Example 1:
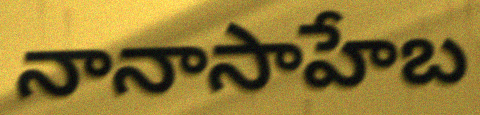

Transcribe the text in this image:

నానాసాహేబ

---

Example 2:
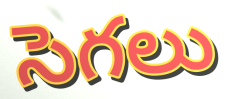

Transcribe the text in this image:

సెగలు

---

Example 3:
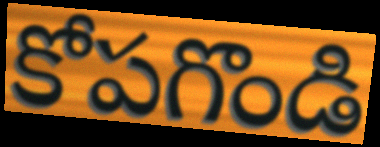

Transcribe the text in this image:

కోపగొండి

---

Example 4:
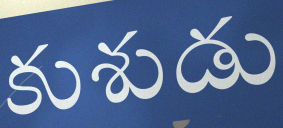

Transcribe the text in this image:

కుశుడు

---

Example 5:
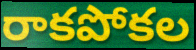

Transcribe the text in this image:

రాకపోకల